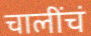
चालींचं